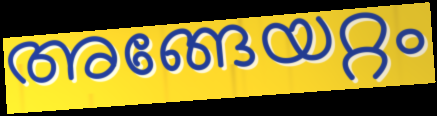
അങ്ങേയറ്റം